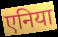
एनिया